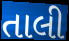
તાલી